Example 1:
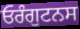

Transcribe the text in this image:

ਓਰੰਗੁਟਨਸ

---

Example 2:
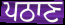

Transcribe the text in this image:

ਪਠਾਣ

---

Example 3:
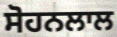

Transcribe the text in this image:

ਸੋਹਨਲਾਲ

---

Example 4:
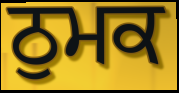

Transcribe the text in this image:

ਠੁਮਕ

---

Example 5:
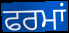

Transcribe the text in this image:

ਫਰਮਾਂ